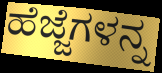
ಹೆಜ್ಜೆಗಳನ್ನ